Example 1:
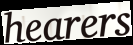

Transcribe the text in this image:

hearers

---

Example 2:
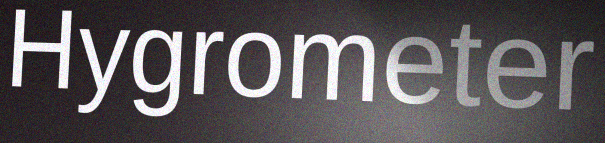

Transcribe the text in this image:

Hygrometer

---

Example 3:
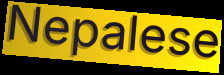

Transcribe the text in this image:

Nepalese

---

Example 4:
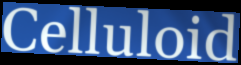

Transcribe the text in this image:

Celluloid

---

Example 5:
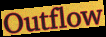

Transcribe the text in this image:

Outflow